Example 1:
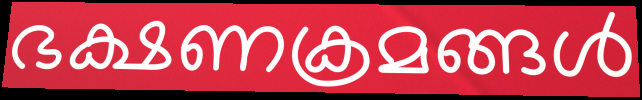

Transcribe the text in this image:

ഭക്ഷണക്രമങ്ങൾ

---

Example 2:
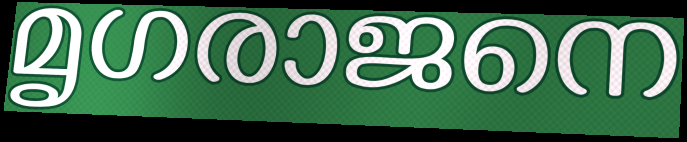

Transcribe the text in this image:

മൃഗരാജനെ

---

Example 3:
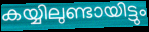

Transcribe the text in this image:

കയ്യിലുണ്ടായിട്ടും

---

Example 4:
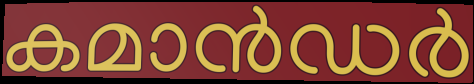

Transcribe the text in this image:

കമാൻഡർ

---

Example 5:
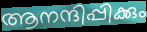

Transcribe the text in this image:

ആനന്ദിപ്പിക്കും